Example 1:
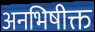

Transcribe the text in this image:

अनभिषीक्त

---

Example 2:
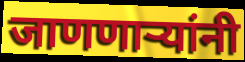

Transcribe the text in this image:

जाणणाऱ्यांनी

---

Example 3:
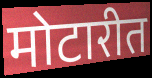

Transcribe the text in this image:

मोटारीत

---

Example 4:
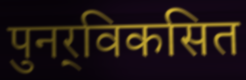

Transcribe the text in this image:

पुनर्विकसित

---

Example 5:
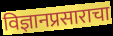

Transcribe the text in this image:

विज्ञानप्रसाराचा